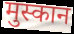
मुस्कान